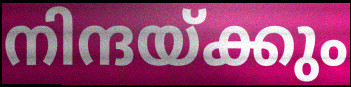
നിന്ദയ്ക്കും